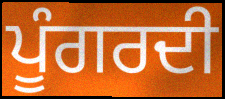
ਪੂੰਗਰਦੀ